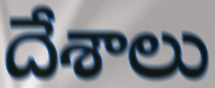
దేశాలు